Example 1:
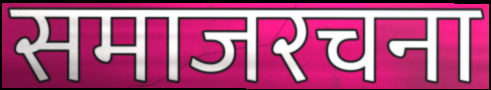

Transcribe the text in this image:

समाजरचना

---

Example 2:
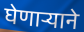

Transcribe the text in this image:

घेणाऱ्याने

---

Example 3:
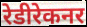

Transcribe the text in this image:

रेडीरेकनर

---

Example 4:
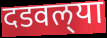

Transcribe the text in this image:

दडवल्या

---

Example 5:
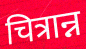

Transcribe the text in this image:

चित्रान्न